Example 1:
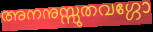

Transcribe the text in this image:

അനനുസ്സുതവഗ്ഗോ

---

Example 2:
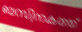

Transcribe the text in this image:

ബസിനകത്ത്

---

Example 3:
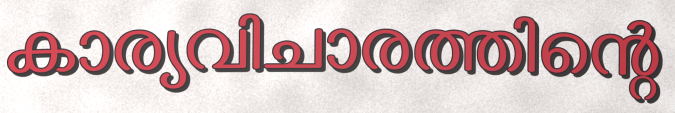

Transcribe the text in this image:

കാര്യവിചാരത്തിന്റെ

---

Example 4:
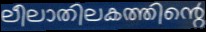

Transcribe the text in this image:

ലീലാതിലകത്തിന്റെ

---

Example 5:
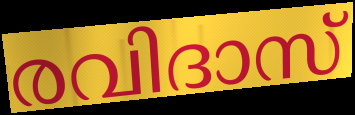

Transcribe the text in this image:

രവിദാസ്